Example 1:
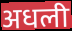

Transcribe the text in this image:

अधली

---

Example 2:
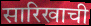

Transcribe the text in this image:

सारिखाची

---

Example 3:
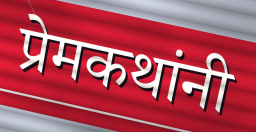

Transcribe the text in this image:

प्रेमकथांनी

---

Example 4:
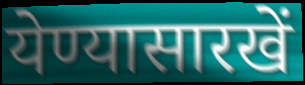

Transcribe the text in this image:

येण्यासारखें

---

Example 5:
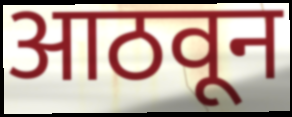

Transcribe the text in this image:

आठवून